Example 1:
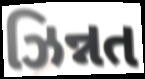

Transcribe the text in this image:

ઝિન્નત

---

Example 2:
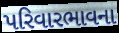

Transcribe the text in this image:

પરિવારભાવના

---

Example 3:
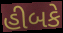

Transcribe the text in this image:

હીબકે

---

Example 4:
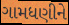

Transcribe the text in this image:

ગામધણીને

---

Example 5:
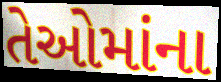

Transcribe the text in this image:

તેઓમાંના